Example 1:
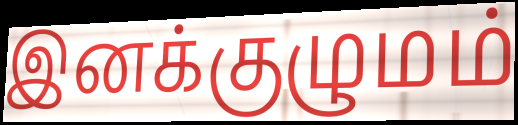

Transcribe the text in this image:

இனக்குழுமம்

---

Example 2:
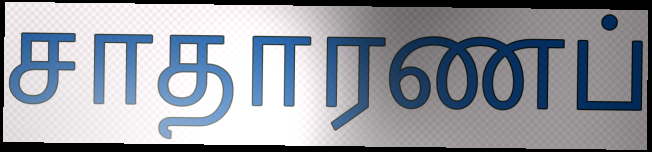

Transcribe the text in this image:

சாதாரணப்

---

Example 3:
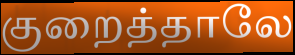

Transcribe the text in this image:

குறைத்தாலே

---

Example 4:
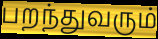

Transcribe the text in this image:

பறந்துவரும்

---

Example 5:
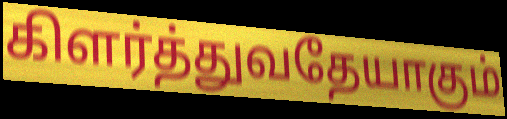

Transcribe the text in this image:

கிளர்த்துவதேயாகும்